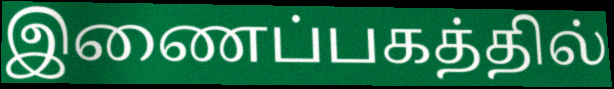
இணைப்பகத்தில்